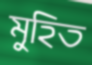
মুহিত